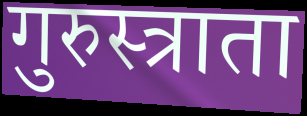
गुरुस्त्राता